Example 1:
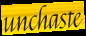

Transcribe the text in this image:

unchaste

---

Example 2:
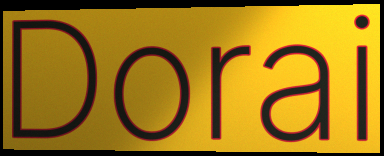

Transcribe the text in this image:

Dorai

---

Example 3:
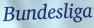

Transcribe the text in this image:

Bundesliga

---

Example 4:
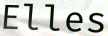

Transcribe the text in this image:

Elles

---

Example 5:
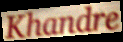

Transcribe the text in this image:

Khandre